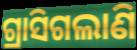
ଗ୍ରାସିଗଲାଣି